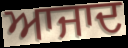
ਆਜਾਦ